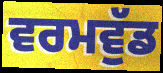
ਵਰਮਵੁੱਡ